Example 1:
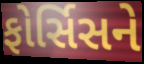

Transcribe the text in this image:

ફોર્સિસને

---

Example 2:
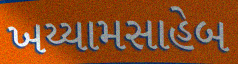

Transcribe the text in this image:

ખય્યામસાહેબ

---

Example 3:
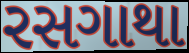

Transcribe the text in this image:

રસગાથા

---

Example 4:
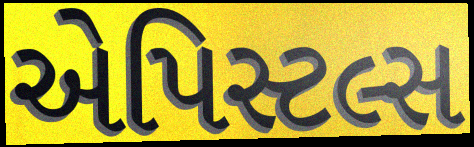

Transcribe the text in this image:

એપિસ્ટલ્સ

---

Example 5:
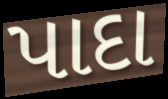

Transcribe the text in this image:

પાદા